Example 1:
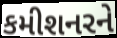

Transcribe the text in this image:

કમીશનરને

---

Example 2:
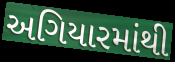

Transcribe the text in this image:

અગિયારમાંથી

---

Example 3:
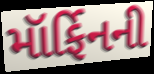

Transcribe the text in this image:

મૉર્ફિનની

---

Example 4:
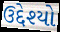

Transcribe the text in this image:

ઉદ્દેશ્યો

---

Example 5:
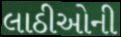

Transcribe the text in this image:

લાઠીઓની